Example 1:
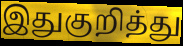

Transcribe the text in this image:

இதுகுறித்து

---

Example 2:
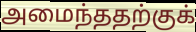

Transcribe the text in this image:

அமைந்ததற்குக்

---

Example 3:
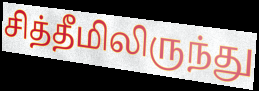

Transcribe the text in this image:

சித்தீமிலிருந்து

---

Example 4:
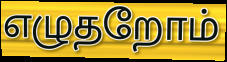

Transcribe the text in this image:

எழுதறோம்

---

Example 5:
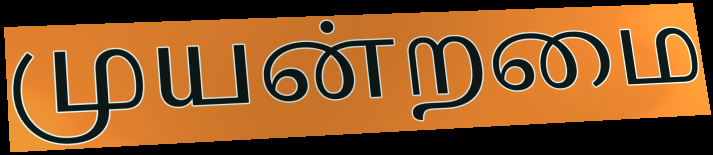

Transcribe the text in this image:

முயன்றமை